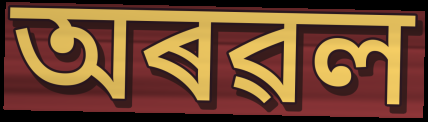
অৰৱল